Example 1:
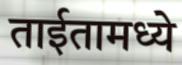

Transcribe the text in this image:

ताईतामध्ये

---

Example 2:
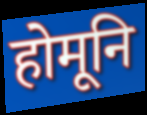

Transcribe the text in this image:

होमूनि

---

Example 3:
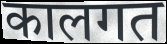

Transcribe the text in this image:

कालगत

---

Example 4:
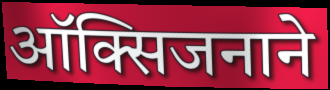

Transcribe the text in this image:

ऑक्सिजनाने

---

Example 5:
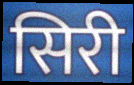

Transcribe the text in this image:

सिरी